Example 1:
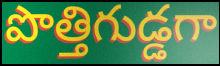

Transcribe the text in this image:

పొత్తిగుడ్డగా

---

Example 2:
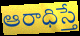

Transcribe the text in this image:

ఆరాధిస్తే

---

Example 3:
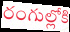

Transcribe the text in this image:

రంగుల్లోకి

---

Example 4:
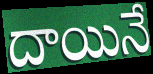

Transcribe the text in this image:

దాయినే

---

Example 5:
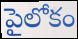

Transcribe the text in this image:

పైలోకం